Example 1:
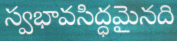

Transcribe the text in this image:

స్వభావసిద్ధమైనది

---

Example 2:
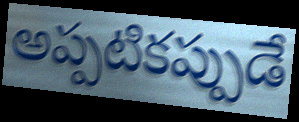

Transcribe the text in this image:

అప్పటికప్పుడే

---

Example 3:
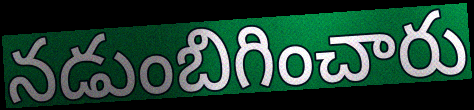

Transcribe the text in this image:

నడుంబిగించారు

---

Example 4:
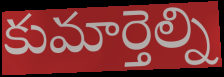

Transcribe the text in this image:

కుమార్తెల్ని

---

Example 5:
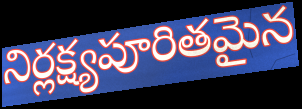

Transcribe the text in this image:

నిర్లక్ష్యపూరితమైన